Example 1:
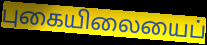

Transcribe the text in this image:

புகையிலையைப்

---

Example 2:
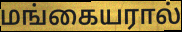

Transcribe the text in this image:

மங்கையரால்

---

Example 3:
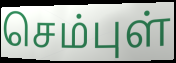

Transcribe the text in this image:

செம்புள்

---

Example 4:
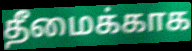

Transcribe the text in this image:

தீமைக்காக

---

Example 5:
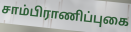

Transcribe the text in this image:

சாம்பிராணிப்புகை